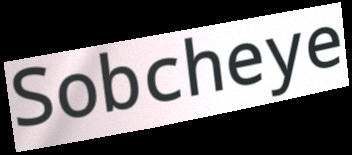
Sobcheye